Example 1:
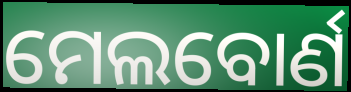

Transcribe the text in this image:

ମେଲବୋର୍ଣ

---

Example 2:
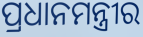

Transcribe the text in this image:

ପ୍ରଧାନମନ୍ତ୍ରୀର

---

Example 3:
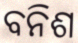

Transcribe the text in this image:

ବନିଶ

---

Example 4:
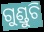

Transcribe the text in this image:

ଗୁଣ୍ଡୁଚି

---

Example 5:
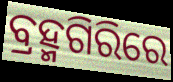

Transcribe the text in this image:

ବ୍ରହ୍ମଗିରିରେ